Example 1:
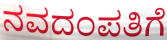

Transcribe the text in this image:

ನವದಂಪತಿಗೆ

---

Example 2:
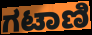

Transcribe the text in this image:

ಗಟಾಣಿ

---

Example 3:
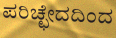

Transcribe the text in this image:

ಪರಿಚ್ಛೇದದಿಂದ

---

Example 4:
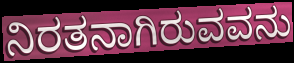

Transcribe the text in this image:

ನಿರತನಾಗಿರುವವನು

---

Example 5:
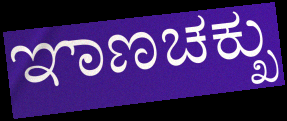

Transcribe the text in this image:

ಞಾಣಚಕ್ಖು